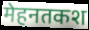
मेहनतकश